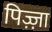
पिज़्ज़ा